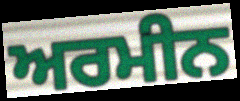
ਅਰਮੀਨ